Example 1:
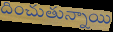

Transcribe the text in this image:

దించుతున్నాయి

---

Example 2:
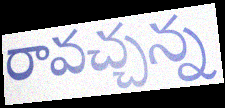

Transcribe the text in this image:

రావచ్చన్న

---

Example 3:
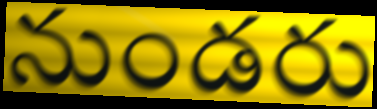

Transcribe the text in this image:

నుండరు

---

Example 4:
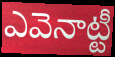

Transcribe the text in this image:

ఎవెనాట్టీ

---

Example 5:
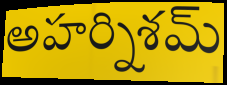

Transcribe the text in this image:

అహర్నిశమ్